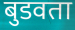
बुडवता